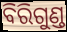
ବିରିଗୁଣ୍ଡ